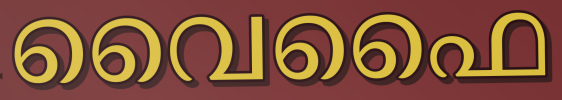
വൈഫൈ